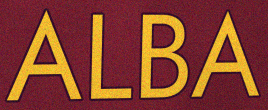
ALBA